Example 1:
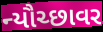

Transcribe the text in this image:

ન્યૌચ્છાવર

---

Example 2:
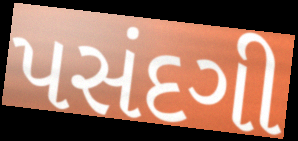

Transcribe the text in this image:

પસંદગી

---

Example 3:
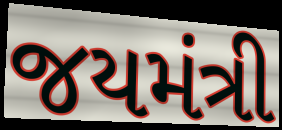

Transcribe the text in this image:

જયમંત્રી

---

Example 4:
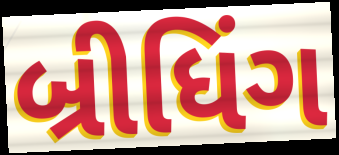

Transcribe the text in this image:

બ્રીધિંગ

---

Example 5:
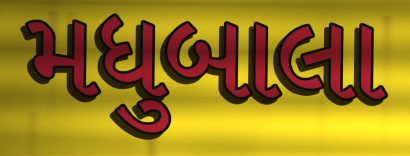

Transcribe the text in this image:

મધુબાલા